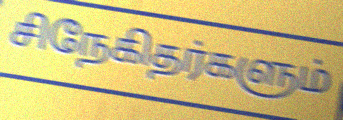
சிநேகிதர்களும்